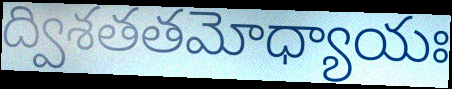
ద్విశతతమోధ్యాయః